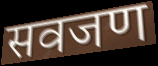
सवजण